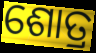
ଶୋତ୍ର